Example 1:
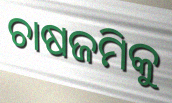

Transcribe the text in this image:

ଚାଷଜମିକୁ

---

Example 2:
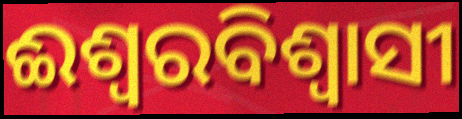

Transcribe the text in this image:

ଈଶ୍ବରବିଶ୍ବାସୀ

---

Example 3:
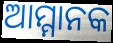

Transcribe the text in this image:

ଆମ୍ମାନକ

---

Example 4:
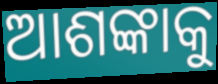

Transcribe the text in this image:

ଆଶଙ୍କାକୁ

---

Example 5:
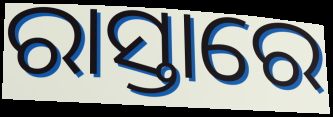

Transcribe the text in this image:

ରାସ୍ତାରେ